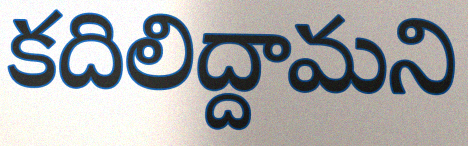
కదిలిద్దామని